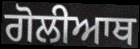
ਗੋਲੀਆਥ